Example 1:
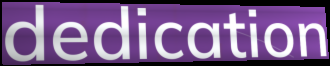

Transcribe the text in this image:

dedication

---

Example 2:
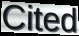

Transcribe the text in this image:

Cited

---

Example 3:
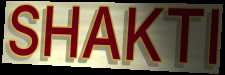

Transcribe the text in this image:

SHAKTI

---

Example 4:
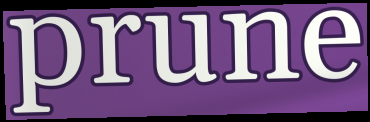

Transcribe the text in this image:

prune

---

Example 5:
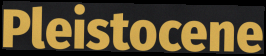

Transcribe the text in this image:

Pleistocene